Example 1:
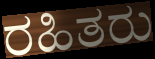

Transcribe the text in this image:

ರಹಿತರು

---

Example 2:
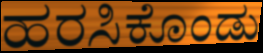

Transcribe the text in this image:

ಹರಸಿಕೊಂಡು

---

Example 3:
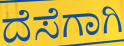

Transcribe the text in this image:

ದೆಸೆಗಾಗಿ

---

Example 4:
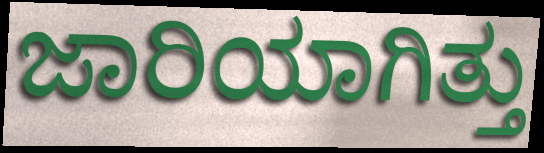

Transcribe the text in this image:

ಜಾರಿಯಾಗಿತ್ತು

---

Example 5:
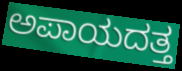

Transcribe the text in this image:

ಅಪಾಯದತ್ತ